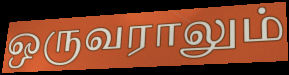
ஒருவராலும்